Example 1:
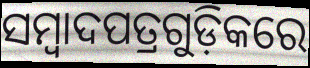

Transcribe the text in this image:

ସମ୍ୱାଦପତ୍ରଗୁଡ଼ିକରେ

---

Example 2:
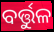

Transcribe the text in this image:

ବର୍ତ୍ତୁଳ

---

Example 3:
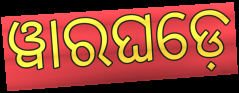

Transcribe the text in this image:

ୱାରଘଡ଼େ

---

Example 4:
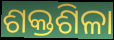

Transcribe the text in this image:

ଶକ୍ତଶିଳା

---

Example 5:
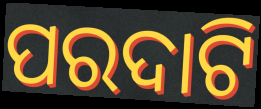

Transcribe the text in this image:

ପରଦାଟି